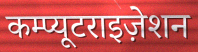
कम्प्यूटराइज़ेशन